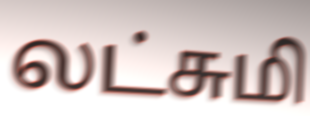
லட்சுமி